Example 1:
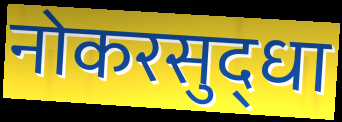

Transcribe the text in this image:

नोकरसुद्धा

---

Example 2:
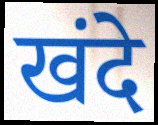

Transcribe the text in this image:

खंदे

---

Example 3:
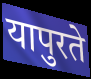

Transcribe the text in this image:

यापुरते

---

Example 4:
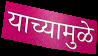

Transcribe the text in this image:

याच्यामुळे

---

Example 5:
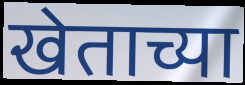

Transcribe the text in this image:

खेताच्या